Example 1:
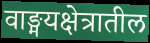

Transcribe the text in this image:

वाङ्मयक्षेत्रातील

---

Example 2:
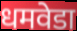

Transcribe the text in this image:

धमवेडा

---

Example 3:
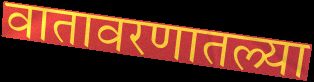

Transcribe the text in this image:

वातावरणातल्या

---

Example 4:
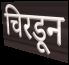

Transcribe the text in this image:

चिरडून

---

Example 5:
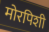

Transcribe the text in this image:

मोरपिशी